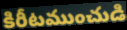
కిరీటముంచుడి